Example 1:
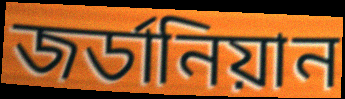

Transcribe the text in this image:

জর্ডানিয়ান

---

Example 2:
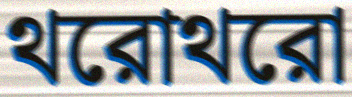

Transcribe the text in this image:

থরোথরো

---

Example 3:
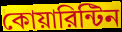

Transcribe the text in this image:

কোয়ারিন্টিন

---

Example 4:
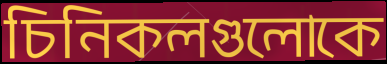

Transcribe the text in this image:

চিনিকলগুলোকে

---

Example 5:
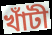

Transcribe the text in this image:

খাঁটী